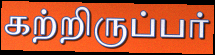
கற்றிருப்பர்